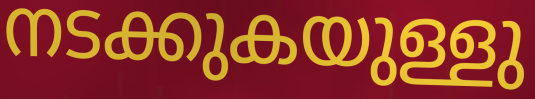
നടക്കുകയുള്ളു